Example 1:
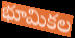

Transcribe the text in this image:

భూమికల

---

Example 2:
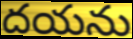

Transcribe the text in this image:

దయను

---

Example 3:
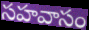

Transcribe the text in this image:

సహవాసం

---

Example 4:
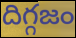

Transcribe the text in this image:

దిగ్గజం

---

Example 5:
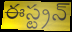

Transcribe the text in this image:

ఈస్ట్రన్